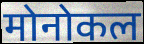
मोनोकल